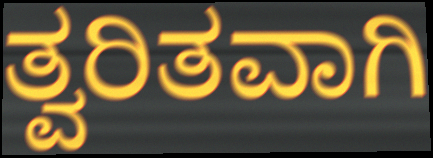
ತ್ವರಿತವಾಗಿ